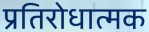
प्रतिरोधात्मक